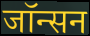
जॉन्सन